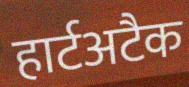
हार्टअटैक